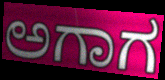
ಅಗಾಗ